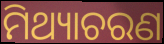
ମିଥ୍ୟାଚରଣ